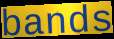
bands